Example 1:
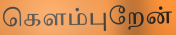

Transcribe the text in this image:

கெளம்புறேன்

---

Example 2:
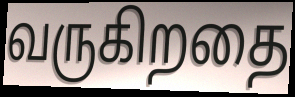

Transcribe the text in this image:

வருகிறதை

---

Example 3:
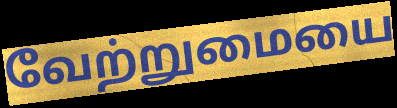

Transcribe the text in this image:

வேற்றுமையை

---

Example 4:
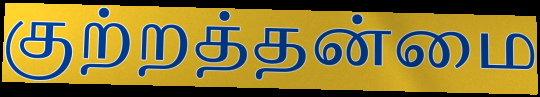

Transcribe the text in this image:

குற்றத்தன்மை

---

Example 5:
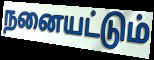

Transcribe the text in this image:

நனையட்டும்